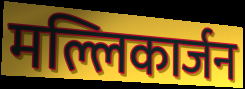
मल्लिकार्जन